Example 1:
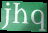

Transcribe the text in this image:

jhq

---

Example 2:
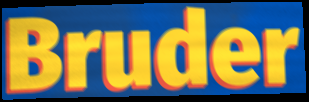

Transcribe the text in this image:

Bruder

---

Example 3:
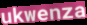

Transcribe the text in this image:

ukwenza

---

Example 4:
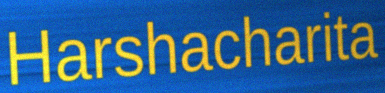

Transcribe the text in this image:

Harshacharita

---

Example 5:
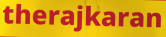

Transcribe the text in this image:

therajkaran